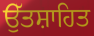
ਉੱਤਸ਼ਾਹਿਤ